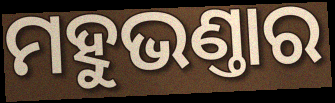
ମହୁଭଣ୍ତାର